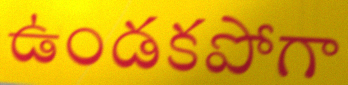
ఉండకపోగా